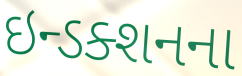
ઇન્ડક્શનના